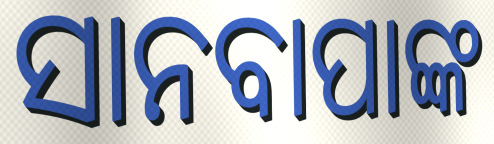
ସାନବାପାଙ୍କ